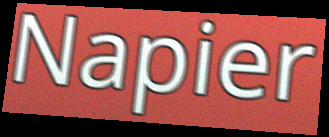
Napier